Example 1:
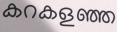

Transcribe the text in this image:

കറകളഞ്ഞ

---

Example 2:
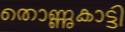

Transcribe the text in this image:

തൊണ്ണുകാട്ടി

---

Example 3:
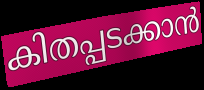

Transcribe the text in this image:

കിതപ്പടക്കാൻ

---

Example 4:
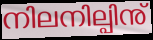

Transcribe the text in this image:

നിലനില്പിനു്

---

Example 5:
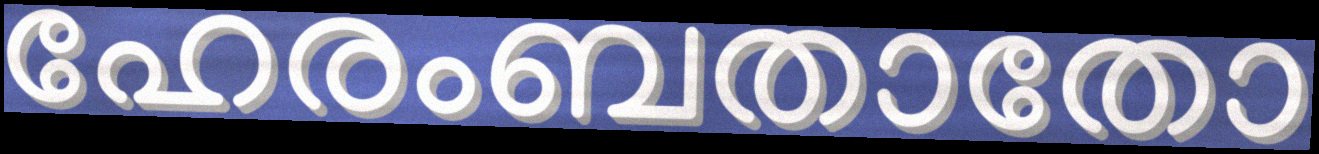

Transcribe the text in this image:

ഹേരംബതാതോ